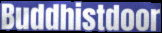
Buddhistdoor